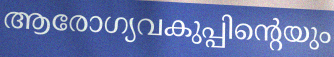
ആരോഗ്യവകുപ്പിന്റെയും